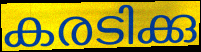
കരടിക്കു